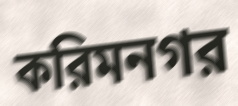
করিমনগর